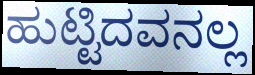
ಹುಟ್ಟಿದವನಲ್ಲ